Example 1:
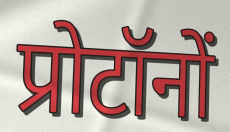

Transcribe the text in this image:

प्रोटॉनों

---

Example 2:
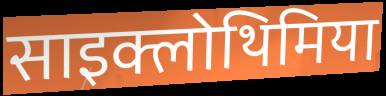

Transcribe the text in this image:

साइक्लोथिमिया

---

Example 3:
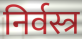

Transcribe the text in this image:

निर्वस्त्र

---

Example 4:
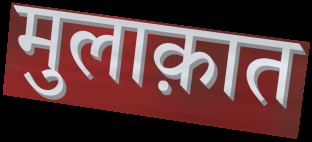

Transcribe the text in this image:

मुलाक़ात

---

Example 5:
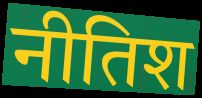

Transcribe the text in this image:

नीतिश